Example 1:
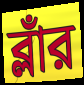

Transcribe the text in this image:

ব্লাঁর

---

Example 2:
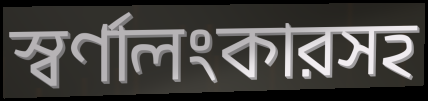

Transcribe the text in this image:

স্বর্ণালংকারসহ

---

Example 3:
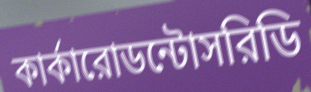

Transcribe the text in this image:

কার্কারোডন্টোসরিডি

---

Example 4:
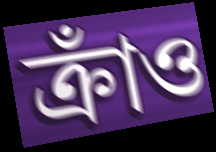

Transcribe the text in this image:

ক্রাঁও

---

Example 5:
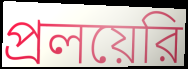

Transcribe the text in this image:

প্রলয়েরি